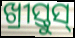
ଖ୍ରୀସ୍ତୁସ୍